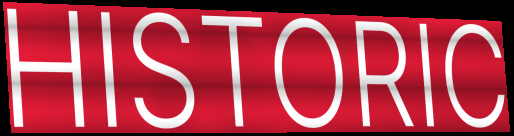
HISTORIC